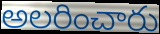
అలరించారు